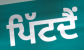
ਪਿੱਟਦੈਂ